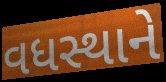
વધસ્થાને